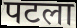
पटला